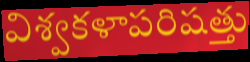
విశ్వకళాపరిషత్తు